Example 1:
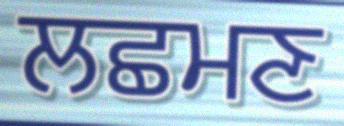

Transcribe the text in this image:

ਲਛਮਣ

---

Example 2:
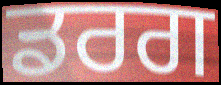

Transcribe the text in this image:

ਡਰਗ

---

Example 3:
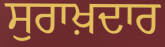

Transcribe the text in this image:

ਸੁਰਾਖ਼ਦਾਰ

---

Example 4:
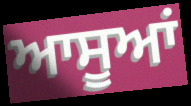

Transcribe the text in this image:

ਆਸੂਆਂ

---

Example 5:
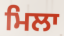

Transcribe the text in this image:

ਮਿਲਾ